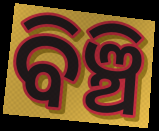
ବିଞ୍ଚି